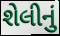
શેલીનું